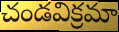
చండవిక్రమా